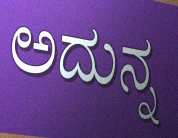
ಅದುನ್ನ